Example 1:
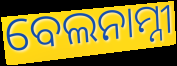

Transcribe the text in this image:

ବେଲନାମ୍ନୀ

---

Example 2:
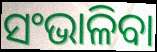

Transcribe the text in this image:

ସଂଭାଳିବା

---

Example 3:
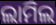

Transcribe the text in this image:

ଲାମିଲ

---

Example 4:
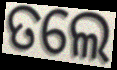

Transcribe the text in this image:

ତଲେ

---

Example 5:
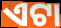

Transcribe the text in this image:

ଏଟା